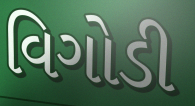
વિગોડી